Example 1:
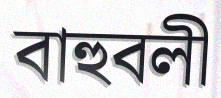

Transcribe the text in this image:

বাহুবলী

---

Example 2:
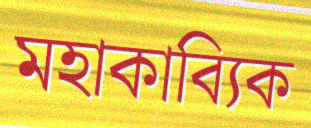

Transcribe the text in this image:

মহাকাব্যিক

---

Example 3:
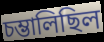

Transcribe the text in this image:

চম্ভালিছিল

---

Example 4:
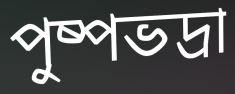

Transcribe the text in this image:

পুষ্পভদ্ৰা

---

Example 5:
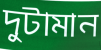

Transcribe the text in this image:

দুটামান